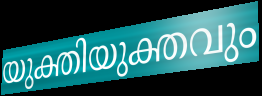
യുക്തിയുക്തവും